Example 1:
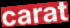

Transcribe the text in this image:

carat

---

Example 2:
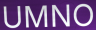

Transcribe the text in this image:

UMNO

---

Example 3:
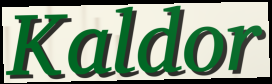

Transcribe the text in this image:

Kaldor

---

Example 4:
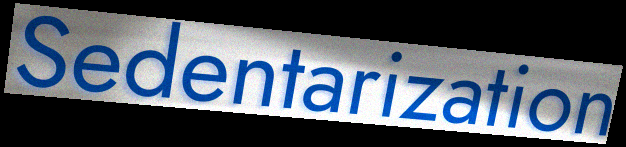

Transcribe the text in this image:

Sedentarization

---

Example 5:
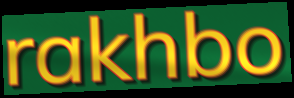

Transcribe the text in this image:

rakhbo